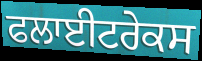
ਫਲਾਈਟਰੇਕਸ